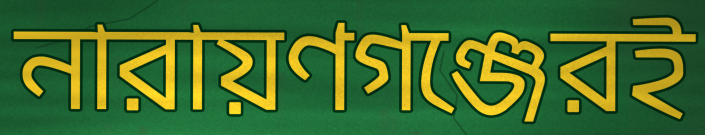
নারায়ণগঞ্জেরই